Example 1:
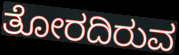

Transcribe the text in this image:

ತೋರದಿರುವ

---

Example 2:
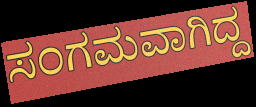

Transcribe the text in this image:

ಸಂಗಮವಾಗಿದ್ದ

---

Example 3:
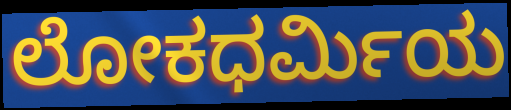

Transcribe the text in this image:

ಲೋಕಧರ್ಮಿಯ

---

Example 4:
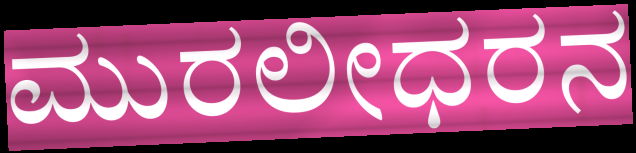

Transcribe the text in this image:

ಮುರಲೀಧರನ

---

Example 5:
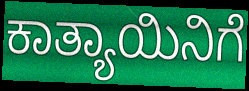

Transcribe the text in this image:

ಕಾತ್ಯಾಯಿನಿಗೆ